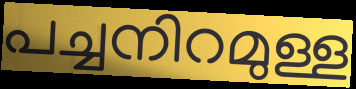
പച്ചനിറമുള്ള